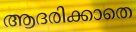
ആദരിക്കാതെ